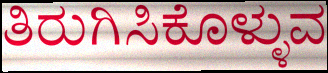
ತಿರುಗಿಸಿಕೊಳ್ಳುವ